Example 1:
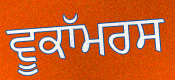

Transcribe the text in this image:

ਵੂਕਾੱਮਰਸ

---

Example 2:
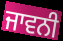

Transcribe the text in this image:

ਜਾਵਨੀ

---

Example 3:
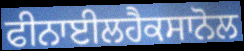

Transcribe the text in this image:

ਫੀਨਾਈਲਹੈਕਸਾਨੋਲ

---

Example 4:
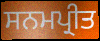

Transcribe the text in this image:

ਸਨਮਪ੍ਰੀਤ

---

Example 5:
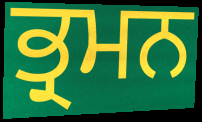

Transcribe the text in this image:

ਭ੍ਰਮਨ